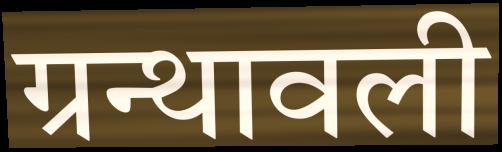
ग्रन्थावली